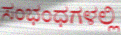
ಸಂಭಂಧಗಳಲ್ಲಿ